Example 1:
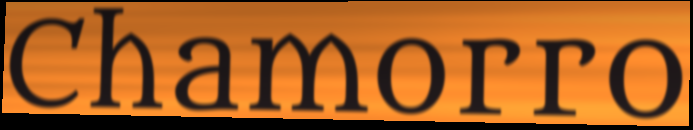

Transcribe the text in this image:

Chamorro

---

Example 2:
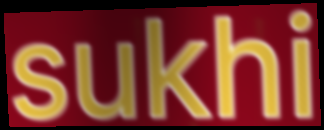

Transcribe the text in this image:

sukhi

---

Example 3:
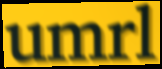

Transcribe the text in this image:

umrl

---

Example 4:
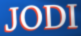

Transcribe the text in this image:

JODI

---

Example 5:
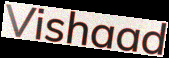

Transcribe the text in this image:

Vishaad